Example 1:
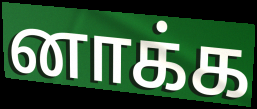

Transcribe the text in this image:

னாக்க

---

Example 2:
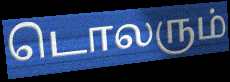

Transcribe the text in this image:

டொலரும்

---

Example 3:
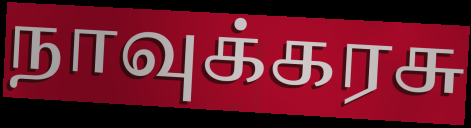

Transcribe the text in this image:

நாவுக்கரசு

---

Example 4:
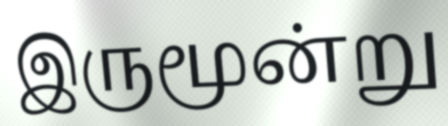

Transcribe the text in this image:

இருமூன்று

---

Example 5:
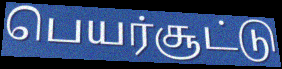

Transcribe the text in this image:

பெயர்சூட்டு